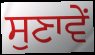
ਸੁਣਾਵੇਂ